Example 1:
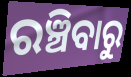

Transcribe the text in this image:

ରଞ୍ଚିବାରୁ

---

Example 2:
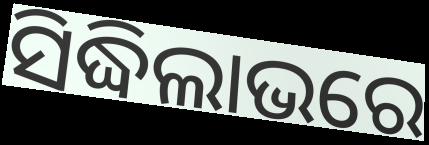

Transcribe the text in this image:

ସିଦ୍ଧିଲାଭରେ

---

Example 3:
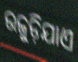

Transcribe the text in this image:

ଉଜୁଡ଼ିଯାଏ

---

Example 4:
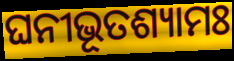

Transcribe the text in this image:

ଘନୀଭୂତଶ୍ୟାମଃ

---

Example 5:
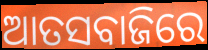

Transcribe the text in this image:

ଆତସବାଜିରେ